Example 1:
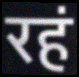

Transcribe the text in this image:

रहं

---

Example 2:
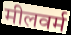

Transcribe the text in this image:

मीलवर्म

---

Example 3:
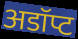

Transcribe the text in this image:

अडॉप्‍ट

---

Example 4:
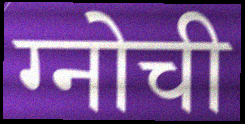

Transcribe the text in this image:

ग्नोची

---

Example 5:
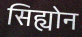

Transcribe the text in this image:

सिह्योन